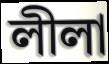
লীলা